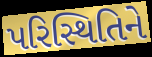
પરિસ્થિતિને